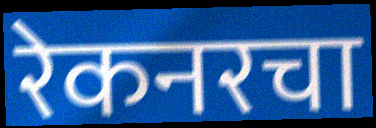
रेकनरचा